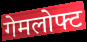
गेमलोफ्ट